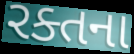
રક્તના